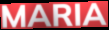
MARIA